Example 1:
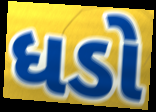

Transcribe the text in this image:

ધડો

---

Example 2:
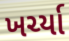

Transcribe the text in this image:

ખર્ચ્યા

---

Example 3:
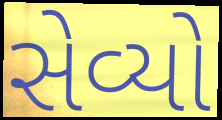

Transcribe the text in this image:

સેવ્યો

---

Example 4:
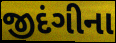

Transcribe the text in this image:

જીદંગીના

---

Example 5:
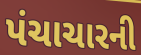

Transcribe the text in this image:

પંચાચારની